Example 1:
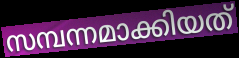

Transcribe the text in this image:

സമ്പന്നമാക്കിയത്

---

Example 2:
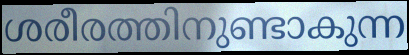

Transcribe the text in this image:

ശരീരത്തിനുണ്ടാകുന്ന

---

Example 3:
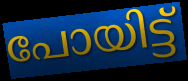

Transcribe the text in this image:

പോയിട്ട്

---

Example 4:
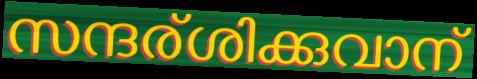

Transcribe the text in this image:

സന്ദര്ശിക്കുവാന്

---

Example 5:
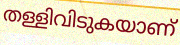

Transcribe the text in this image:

തള്ളിവിടുകയാണ്